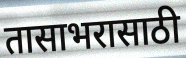
तासाभरासाठी